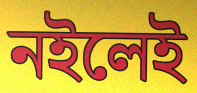
নইলেই